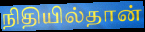
நிதியில்தான்